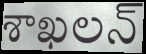
శాఖలన్